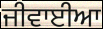
ਜੀਵਾਈਆ